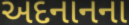
અદનાનના